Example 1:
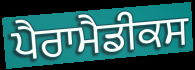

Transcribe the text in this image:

ਪੈਰਾਮੈਡੀਕਸ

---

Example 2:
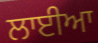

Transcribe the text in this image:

ਲਾਈਆ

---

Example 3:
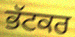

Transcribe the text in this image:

ਭੱਟਕਰ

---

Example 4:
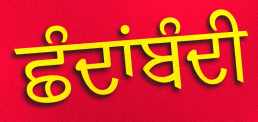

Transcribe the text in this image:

ਛੰਦਾਂਬੰਦੀ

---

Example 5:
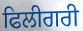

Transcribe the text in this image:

ਫਿਲੀਗਰੀ